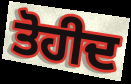
ਤੋਹੀਦ